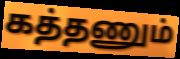
கத்தணும்